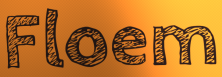
Floem